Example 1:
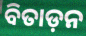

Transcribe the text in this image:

ବିତାଡ଼ନ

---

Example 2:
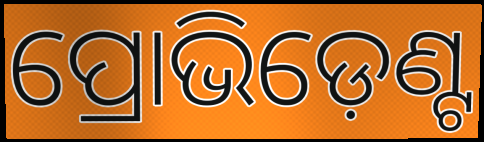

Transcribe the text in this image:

ପ୍ରୋଭିଡ଼େଣ୍ଟ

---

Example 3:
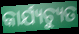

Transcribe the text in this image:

କାର୍ଯ୍ୟଚ୍ୟୁତ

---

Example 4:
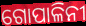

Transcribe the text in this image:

ଗୋପାଳିନୀ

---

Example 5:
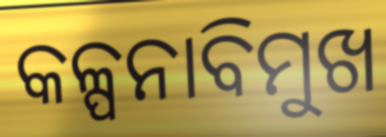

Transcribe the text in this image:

କଳ୍ପନାବିମୁଖ